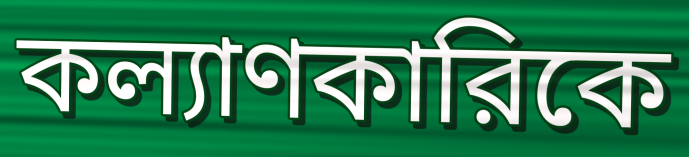
কল্যাণকারিকে